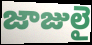
జాజులై